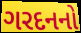
ગરદનનો